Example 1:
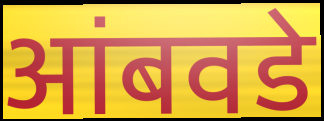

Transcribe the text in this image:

आंबवडे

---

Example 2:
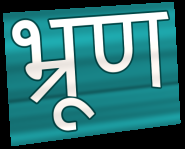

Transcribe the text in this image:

भ्रूण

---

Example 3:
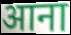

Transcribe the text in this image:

आना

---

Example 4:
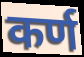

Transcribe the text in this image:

कर्ण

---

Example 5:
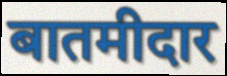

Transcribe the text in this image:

बातमीदार